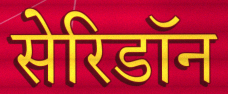
सेरिडॉन